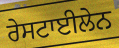
ਰੇਸਟਾਈਲੇਨ